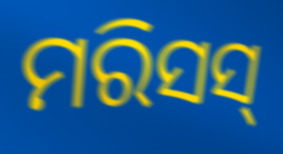
ମରିସସ୍